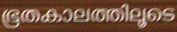
ഭൂതകാലത്തിലൂടെ